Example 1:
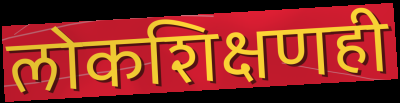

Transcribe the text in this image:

लोकशिक्षणही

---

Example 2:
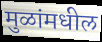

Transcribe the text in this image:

मुळांमधील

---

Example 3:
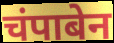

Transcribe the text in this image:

चंपाबेन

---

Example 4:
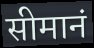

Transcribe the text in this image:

सीमानं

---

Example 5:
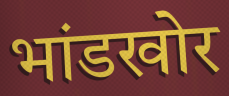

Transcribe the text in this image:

भांडखोर